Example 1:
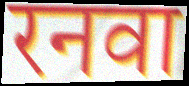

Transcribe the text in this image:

रनवा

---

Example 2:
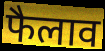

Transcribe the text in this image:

फैलाव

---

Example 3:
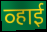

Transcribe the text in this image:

व्हाई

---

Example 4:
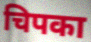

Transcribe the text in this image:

चिपका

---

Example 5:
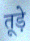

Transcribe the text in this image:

तूड़े